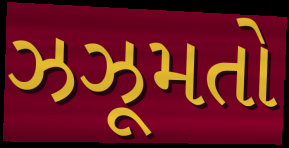
ઝઝૂમતો